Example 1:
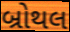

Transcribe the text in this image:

બ્રોથલ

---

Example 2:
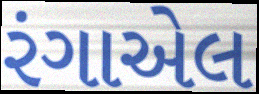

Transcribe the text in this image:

રંગાએલ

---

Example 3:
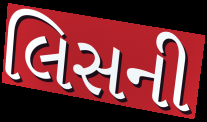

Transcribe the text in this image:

લિસની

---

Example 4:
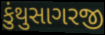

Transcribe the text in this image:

કુંથુસાગરજી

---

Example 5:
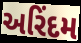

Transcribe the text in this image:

અરિંદમ